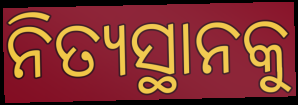
ନିତ୍ୟସ୍ଥାନକୁ